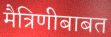
मैत्रिणीबाबत